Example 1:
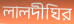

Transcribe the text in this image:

লালদীঘির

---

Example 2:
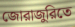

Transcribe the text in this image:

জোরাজুরিতে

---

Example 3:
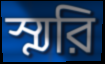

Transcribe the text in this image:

স্মরি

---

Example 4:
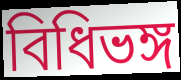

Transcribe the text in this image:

বিধিভঙ্গ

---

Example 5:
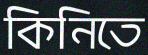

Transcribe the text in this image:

কিনিতে